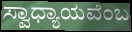
ಸ್ವಾಧ್ಯಾಯವೆಂಬ